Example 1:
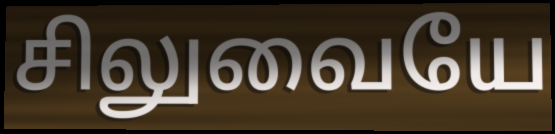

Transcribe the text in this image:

சிலுவையே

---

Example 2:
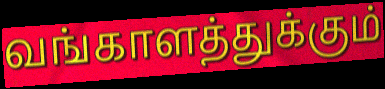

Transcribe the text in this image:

வங்காளத்துக்கும்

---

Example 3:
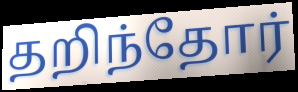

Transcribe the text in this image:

தறிந்தோர்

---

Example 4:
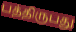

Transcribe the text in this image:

பத்திருபது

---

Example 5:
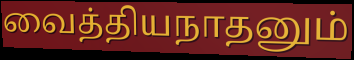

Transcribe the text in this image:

வைத்தியநாதனும்